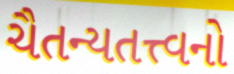
ચૈતન્યતત્ત્વનો